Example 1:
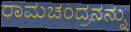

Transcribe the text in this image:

ರಾಮಚಂದ್ರನನ್ನು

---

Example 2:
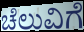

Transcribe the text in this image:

ಚೆಲುವಿಗೆ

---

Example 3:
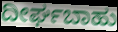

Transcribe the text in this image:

ದೀರ್ಘಬಾಹು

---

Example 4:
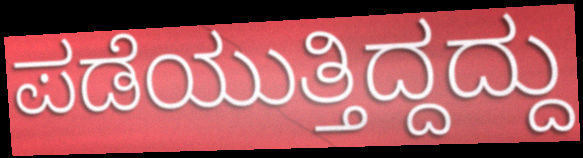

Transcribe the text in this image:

ಪಡೆಯುತ್ತಿದ್ದದ್ದು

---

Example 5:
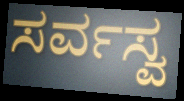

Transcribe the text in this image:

ಸರ್ವಸ್ವ